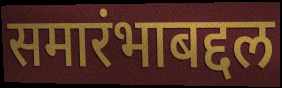
समारंभाबद्दल